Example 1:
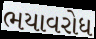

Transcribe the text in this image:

ભયાવરોધ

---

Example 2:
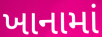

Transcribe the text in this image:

ખાનામાં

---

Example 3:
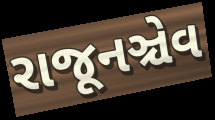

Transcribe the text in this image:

રાજૂનઞ્ચેવ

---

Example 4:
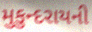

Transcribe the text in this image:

મુકુન્દરાયની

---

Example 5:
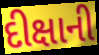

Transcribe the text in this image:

દીક્ષાની